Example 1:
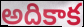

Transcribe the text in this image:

అదికాక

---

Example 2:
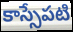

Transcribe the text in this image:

కాస్సేపటి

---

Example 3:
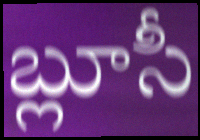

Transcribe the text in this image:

బ్లూసీ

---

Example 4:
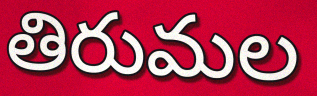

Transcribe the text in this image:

తిరుమల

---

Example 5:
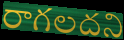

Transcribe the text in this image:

రాగలదని